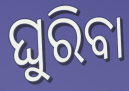
ଘୁରିବା